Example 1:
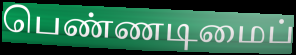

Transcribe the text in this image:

பெண்ணடிமைப்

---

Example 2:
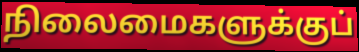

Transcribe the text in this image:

நிலைமைகளுக்குப்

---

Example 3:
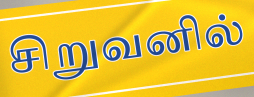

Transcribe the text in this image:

சிறுவனில்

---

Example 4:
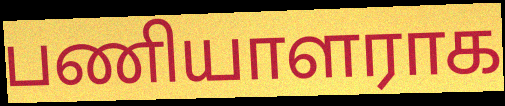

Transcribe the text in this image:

பணியாளராக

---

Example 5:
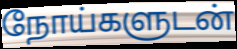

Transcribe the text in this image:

நோய்களுடன்